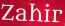
Zahir